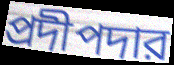
প্রদীপদার